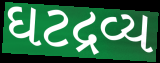
ઘટદ્રવ્ય